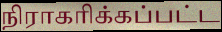
நிராகரிக்கப்பட்ட